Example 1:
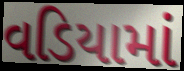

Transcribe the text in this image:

વડિયામાં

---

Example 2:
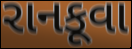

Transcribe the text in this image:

રાનકૂવા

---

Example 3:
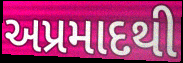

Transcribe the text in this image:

અપ્રમાદથી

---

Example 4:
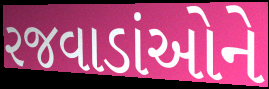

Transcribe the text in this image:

રજવાડાંઓને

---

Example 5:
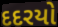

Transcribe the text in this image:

દદરયો